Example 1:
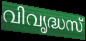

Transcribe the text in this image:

വിവൃദ്ധസ്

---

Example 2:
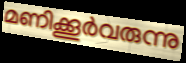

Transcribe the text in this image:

മണിക്കൂർവരുന്നു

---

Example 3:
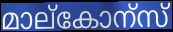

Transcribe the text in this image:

മാല്കോന്സ്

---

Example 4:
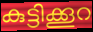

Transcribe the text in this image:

കുട്ടിക്കൂറ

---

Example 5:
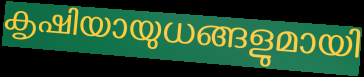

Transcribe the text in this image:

കൃഷിയായുധങ്ങളുമായി